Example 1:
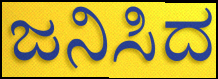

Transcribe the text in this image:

ಜನಿಸಿದ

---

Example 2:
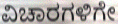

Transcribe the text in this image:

ವಿಚಾರಗಳಿಗೇ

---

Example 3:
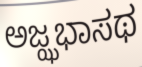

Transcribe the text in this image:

ಅಜ್ಝಭಾಸಥ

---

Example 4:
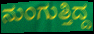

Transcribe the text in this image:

ನುಂಗುತ್ತಿದ್ದ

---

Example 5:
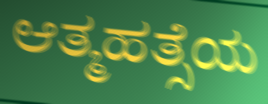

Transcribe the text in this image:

ಆತ್ಮಹತ್ಸೆಯ